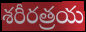
శరీరత్రయ